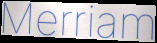
Merriam